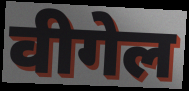
वीगेल